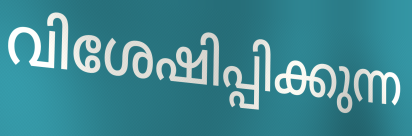
വിശേഷിപ്പിക്കുന്ന